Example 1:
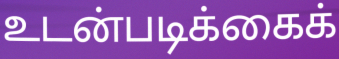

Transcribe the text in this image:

உடன்படிக்கைக்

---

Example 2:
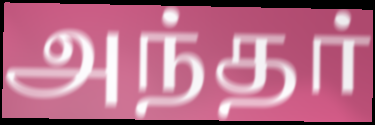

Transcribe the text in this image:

அந்தர்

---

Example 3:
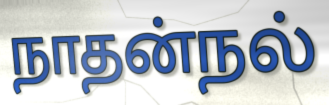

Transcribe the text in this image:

நாதன்நல்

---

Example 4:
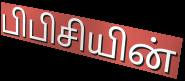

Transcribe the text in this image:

பிபிசியின்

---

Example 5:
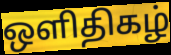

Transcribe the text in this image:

ஒளிதிகழ்